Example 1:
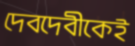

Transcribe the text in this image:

দেবদেবীকেই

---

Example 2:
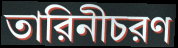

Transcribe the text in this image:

তারিনীচরণ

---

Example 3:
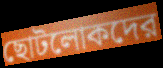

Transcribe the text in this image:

ছোটলোকদের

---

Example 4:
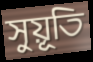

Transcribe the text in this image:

সুয়ূতি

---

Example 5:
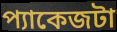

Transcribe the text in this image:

প্যাকেজটা